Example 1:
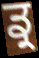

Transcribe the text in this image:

ਡ੍ਰ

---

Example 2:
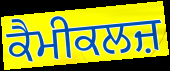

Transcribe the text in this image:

ਕੈਮੀਕਲਜ਼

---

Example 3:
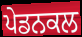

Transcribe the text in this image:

ਪੇਡਨਕਲ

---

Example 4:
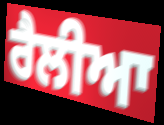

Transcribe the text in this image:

ਰੈਲੀਆ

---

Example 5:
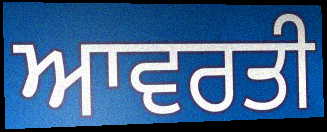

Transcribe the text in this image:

ਆਵਰਤੀ